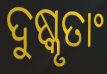
ଦୁଷ୍କୃତାଂ